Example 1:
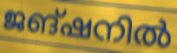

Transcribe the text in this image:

ജങ്ഷനിൽ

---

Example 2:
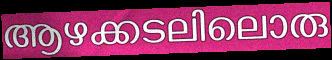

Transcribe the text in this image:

ആഴക്കടലിലൊരു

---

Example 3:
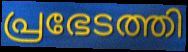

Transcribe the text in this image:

പ്രഭേടത്തി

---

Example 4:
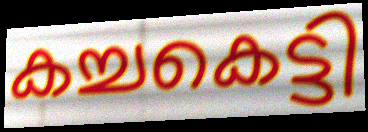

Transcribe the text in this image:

കച്ചകെട്ടി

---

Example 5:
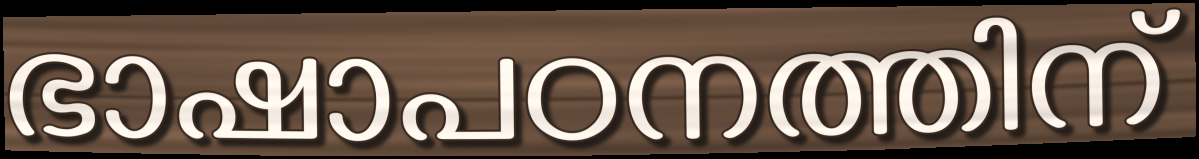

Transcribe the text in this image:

ഭാഷാപഠനത്തിന്